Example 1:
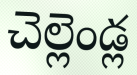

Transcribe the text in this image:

చెల్లెండ్ల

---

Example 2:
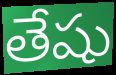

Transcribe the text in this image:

తేషు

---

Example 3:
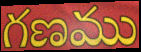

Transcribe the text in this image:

గణము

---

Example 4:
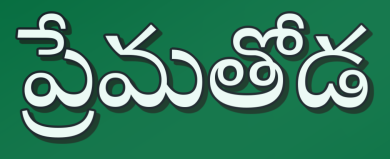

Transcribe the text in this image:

ప్రేమతోడ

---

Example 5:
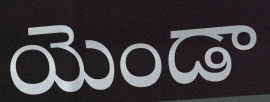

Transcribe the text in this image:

యెండా